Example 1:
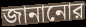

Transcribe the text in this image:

জানানোর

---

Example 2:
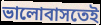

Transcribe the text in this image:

ভালোবাসতেই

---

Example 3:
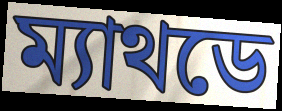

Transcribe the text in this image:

ম্যাথডে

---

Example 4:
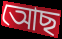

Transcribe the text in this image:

আেছ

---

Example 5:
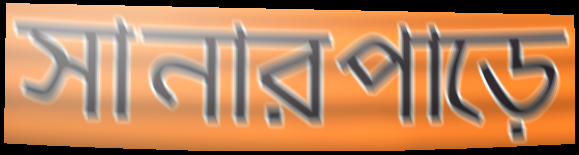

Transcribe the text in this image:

সানারপাড়ে